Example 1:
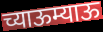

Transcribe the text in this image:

च्याऊम्याऊ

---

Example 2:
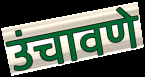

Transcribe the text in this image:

उंचावणे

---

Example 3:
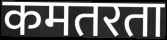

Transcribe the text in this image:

कमतरता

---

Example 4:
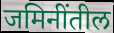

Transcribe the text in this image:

जमिनींतील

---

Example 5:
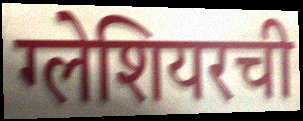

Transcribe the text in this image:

ग्लेशियरची